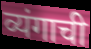
व्यंगाची